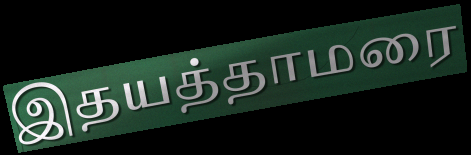
இதயத்தாமரை